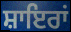
ਸ਼ਾਇਰਾਂ